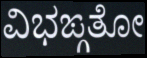
ವಿಭಙ್ಗತೋ